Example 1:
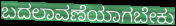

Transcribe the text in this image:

ಬದಲಾವಣೆಯಾಗಬೇಕು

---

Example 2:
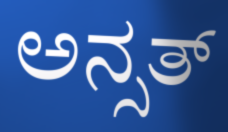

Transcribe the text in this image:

ಅನ್ಸತ್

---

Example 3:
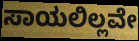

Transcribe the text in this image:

ಸಾಯಲಿಲ್ಲವೇ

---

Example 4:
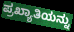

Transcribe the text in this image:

ಪ್ರಖ್ಯಾತಿಯನ್ನು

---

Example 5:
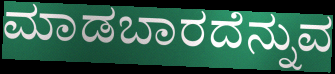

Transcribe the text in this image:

ಮಾಡಬಾರದೆನ್ನುವ